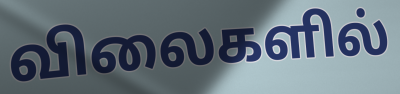
விலைகளில்